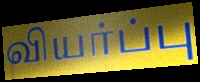
வியர்ப்பு